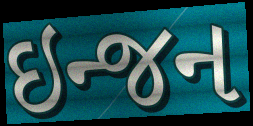
ઇન્જન